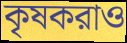
কৃষকরাও